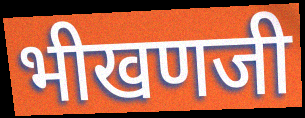
भीखणजी